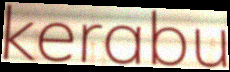
kerabu